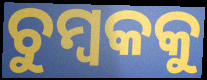
ଚୁମ୍ୱକକୁ